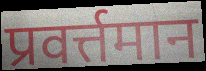
प्रवर्त्तमान